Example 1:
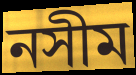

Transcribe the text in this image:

নসীম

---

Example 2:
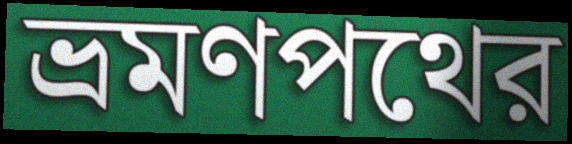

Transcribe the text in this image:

ভ্রমণপথের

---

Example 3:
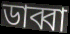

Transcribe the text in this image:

ডাব্বা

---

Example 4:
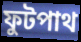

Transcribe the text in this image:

ফুটপাথ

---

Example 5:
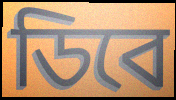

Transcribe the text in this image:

ডিবে